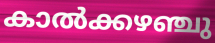
കാൽക്കഴഞ്ചു